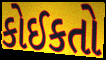
કોઈકતો